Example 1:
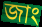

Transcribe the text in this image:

জাং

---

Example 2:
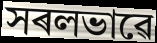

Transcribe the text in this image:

সৰলভাৱে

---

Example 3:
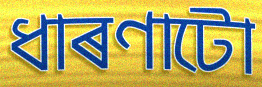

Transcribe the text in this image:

ধাৰণাটো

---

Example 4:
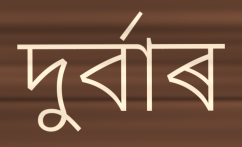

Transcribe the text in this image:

দুৰ্বাৰ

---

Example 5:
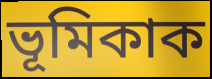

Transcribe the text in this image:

ভূমিকাক